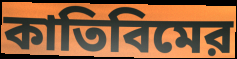
কাতিবিমের